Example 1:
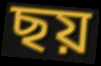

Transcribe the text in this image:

ছয়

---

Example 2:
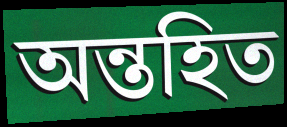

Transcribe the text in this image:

অন্তহিত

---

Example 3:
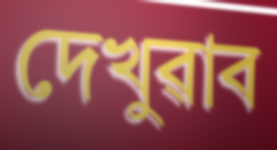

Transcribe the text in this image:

দেখুৱাব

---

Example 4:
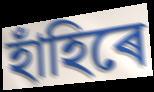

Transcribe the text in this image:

হাঁহিৰে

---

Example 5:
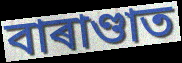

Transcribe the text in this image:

বাৰাণ্ডাত